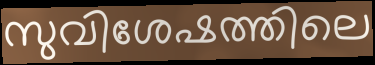
സുവിശേഷത്തിലെ